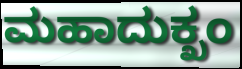
ಮಹಾದುಕ್ಖಂ